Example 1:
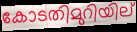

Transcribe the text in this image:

കോടതിമുറിയില്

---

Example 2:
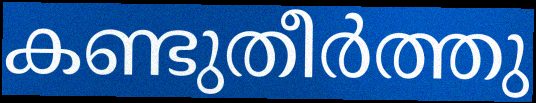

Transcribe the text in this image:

കണ്ടുതീർത്തു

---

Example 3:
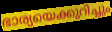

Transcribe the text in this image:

ഭാര്യയെക്കുറിച്ചും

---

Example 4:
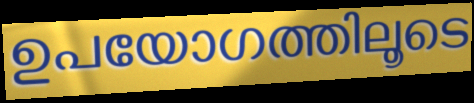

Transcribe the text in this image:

ഉപയോഗത്തിലൂടെ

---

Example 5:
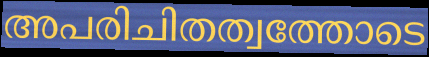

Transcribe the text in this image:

അപരിചിതത്വത്തോടെ